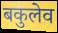
बकुलेव